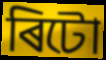
ৰিটো